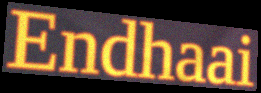
Endhaai